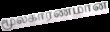
மூலகாரணமான